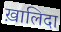
ख़ालिदा